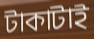
টাকাটাই